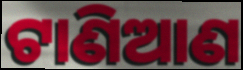
ଟାଣିଆଣ